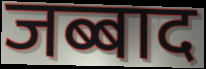
जब्बाद